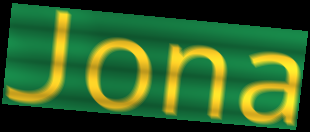
Jona